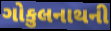
ગોકુલનાથની